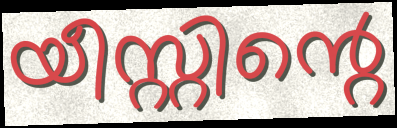
യീസ്റ്റിന്റെ